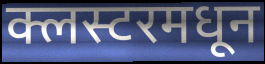
क्लस्टरमधून